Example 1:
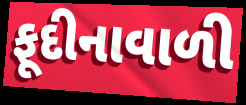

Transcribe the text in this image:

ફૂદીનાવાળી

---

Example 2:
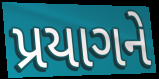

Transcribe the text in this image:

પ્રયાગને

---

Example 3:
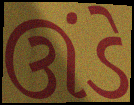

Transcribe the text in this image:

ઊંડે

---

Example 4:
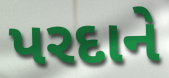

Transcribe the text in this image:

પરદાને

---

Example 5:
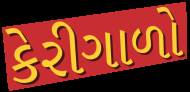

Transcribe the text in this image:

કેરીગાળો